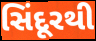
સિંદૂરથી